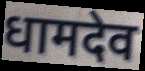
धामदेव